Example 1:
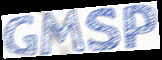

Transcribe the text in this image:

GMSP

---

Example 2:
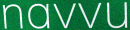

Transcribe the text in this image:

navvu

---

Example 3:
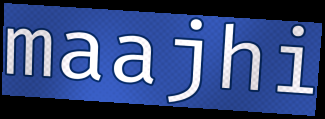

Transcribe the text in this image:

maajhi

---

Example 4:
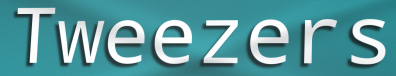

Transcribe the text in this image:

Tweezers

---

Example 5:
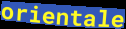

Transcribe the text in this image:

orientale